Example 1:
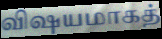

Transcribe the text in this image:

விஷயமாகத்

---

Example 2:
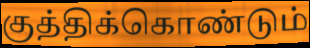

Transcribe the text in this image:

குத்திக்கொண்டும்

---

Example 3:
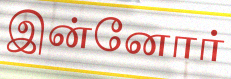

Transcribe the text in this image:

இன்னோர்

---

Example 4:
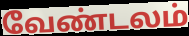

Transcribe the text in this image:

வேண்டலம்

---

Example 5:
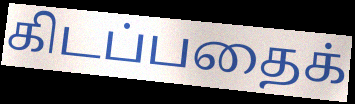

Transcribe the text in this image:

கிடப்பதைக்